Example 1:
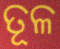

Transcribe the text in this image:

ତୂଳ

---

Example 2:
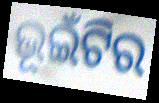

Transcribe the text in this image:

ଭୂଇଁଟିର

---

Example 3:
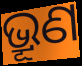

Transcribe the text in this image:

ଭ୍ରୂଣ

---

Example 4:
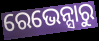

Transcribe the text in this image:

ରେଭେନ୍ସାରୁ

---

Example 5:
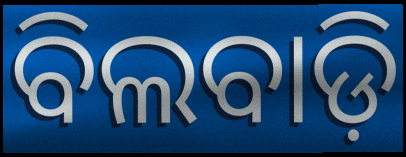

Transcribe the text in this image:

ବିଲବାଡ଼ି